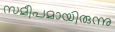
സമീപമായിരുന്നു